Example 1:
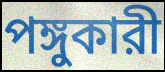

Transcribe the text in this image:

পঙ্গুকারী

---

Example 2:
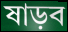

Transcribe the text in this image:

ষাড়ব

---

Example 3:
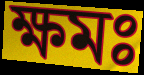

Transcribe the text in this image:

ক্ষমঃ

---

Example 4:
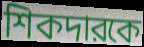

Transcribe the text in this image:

শিকদারকে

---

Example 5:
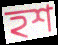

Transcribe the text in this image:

হশ